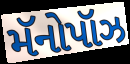
મૅનોપૉઝ